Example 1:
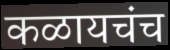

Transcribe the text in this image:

कळायचंच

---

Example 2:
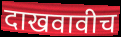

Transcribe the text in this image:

दाखवावीच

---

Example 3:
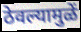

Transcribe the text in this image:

ठेवल्यामुळें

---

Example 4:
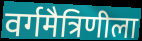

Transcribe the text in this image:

वर्गमैत्रिणीला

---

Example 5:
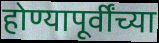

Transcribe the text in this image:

होण्यापूर्वींच्या